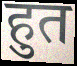
हुत